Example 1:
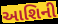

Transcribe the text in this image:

આશિની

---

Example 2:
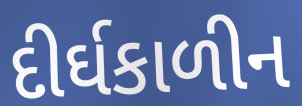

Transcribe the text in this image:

દીર્ઘકાળીન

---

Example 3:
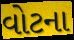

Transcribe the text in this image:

વોટના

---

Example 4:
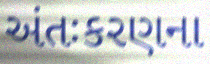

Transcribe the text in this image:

અંતઃકરણના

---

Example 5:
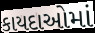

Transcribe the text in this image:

કાયદાઓમાં